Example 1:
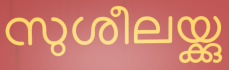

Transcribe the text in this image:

സുശീലയ്ക്കു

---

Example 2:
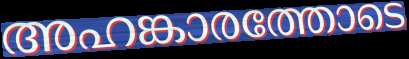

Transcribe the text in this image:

അഹങ്കാരത്തോടെ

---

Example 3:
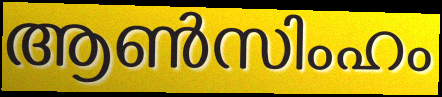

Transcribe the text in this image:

ആൺസിംഹം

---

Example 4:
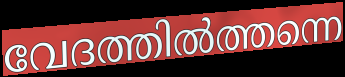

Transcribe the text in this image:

വേദത്തിൽത്തന്നെ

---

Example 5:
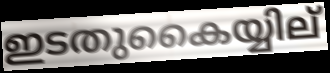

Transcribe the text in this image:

ഇടതുകൈയ്യില്